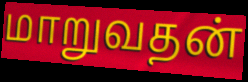
மாறுவதன்